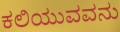
ಕಲಿಯುವವನು